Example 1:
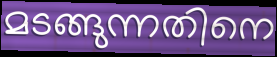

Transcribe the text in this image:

മടങ്ങുന്നതിനെ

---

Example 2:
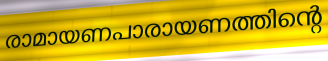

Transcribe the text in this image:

രാമായണപാരായണത്തിന്റെ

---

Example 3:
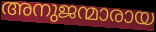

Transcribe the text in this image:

അനുജന്മാരായ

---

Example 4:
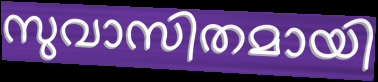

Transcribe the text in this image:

സുവാസിതമായി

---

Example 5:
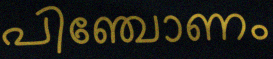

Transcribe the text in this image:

പിഞ്ചോണം